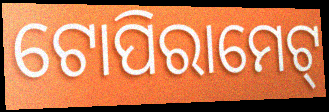
ଟୋପିରାମେଟ୍